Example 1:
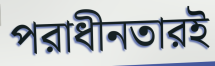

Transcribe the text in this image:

পরাধীনতারই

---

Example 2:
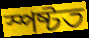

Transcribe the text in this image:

স্পষ্টত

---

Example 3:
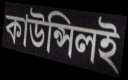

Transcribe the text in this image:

কাউন্সিলই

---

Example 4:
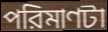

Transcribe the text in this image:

পরিমাণটা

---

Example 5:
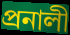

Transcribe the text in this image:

প্রনালী